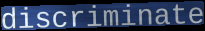
discriminate